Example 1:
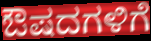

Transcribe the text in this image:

ಔಷದಗಳಿಗೆ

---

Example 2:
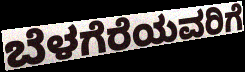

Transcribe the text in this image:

ಬೆಳಗೆರೆಯವರಿಗೆ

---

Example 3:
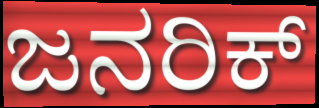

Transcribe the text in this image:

ಜನರಿಕ್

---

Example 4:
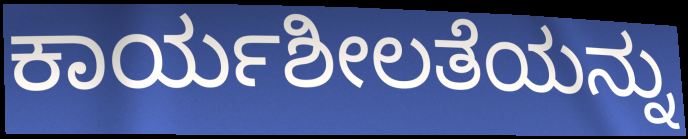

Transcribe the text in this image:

ಕಾರ್ಯಶೀಲತೆಯನ್ನು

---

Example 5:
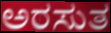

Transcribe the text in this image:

ಅರಸುತ